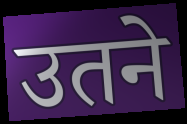
उतने